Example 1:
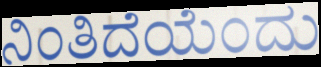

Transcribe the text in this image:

ನಿಂತಿದೆಯೆಂದು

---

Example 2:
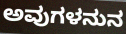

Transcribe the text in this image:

ಅವುಗಳನುನ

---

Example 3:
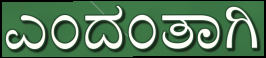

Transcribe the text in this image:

ಎಂದಂತಾಗಿ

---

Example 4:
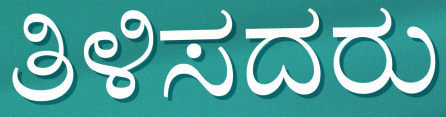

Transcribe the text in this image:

ತಿಳಿಸದರು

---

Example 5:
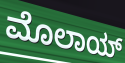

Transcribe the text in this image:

ಮೊಲಾಯ್